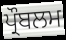
ਪ੍ਰੌਬਲਮ